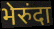
भेरुंदा